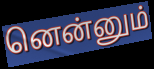
னென்னும்